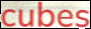
cubes